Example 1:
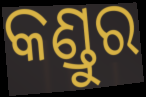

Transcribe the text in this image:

କଣ୍ଡୁର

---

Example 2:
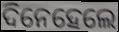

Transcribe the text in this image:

ଦିନେହେଲେ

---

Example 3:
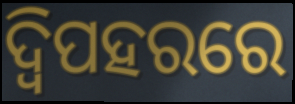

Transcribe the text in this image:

ଦ୍ୱିପହରରେ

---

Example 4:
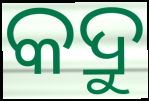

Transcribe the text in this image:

କଦ୍ରୁ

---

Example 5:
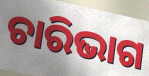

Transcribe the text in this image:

ଚାରିଭାଗ